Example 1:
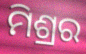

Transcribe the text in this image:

ମିଶ୍ରର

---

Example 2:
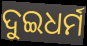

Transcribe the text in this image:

ଦୁଇଧର୍ମ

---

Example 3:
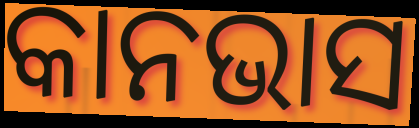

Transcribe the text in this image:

କାନଭାସ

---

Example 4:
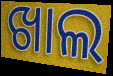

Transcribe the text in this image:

ଖାଲ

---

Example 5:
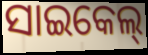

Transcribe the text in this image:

ସାଇକେଲ୍